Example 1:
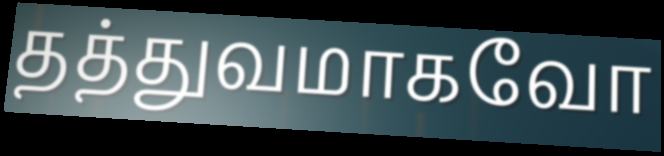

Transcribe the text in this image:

தத்துவமாகவோ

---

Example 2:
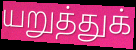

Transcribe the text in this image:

யறுத்துக்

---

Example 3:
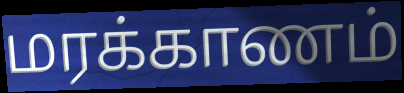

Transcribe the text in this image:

மரக்காணம்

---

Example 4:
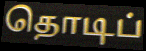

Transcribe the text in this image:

தொடிப்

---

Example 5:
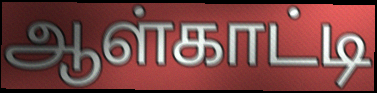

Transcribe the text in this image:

ஆள்காட்டி